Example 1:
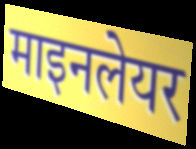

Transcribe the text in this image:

माइनलेयर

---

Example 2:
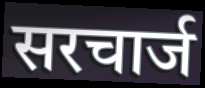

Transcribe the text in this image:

सरचार्ज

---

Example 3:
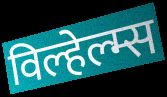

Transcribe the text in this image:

विल्हेल्म्स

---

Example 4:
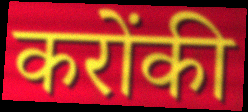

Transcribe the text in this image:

करोंकी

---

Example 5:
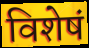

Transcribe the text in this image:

विशेषं